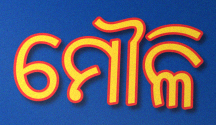
ମୌଳି